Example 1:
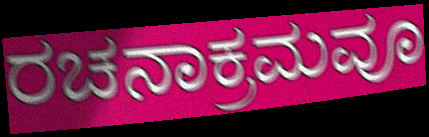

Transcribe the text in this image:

ರಚನಾಕ್ರಮವೂ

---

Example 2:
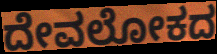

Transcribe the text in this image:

ದೇವಲೋಕದ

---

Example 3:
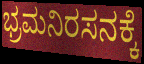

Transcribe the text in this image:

ಭ್ರಮನಿರಸನಕ್ಕೆ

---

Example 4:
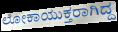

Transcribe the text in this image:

ಲೋಕಾಯುಕ್ತರಾಗಿದ್ದ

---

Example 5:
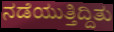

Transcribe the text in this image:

ನಡೆಯುತ್ತಿದ್ದಿತು